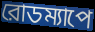
রোডম্যাপে